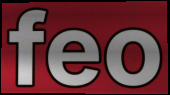
feo